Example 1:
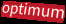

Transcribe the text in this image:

optimum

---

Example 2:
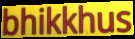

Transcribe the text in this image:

bhikkhus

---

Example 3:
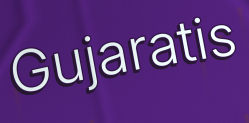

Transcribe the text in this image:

Gujaratis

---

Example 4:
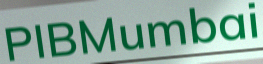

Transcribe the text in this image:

PIBMumbai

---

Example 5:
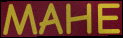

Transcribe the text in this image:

MAHE